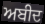
ਅਬੀਦ